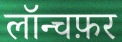
लॉन्चफ़र